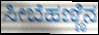
ಸೀಬೆಹಣ್ಣಿನ